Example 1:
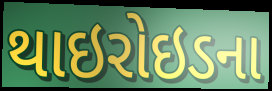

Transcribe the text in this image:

થાઇરોઇડના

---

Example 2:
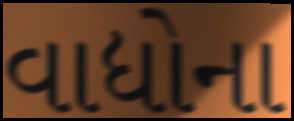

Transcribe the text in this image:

વાદ્યોના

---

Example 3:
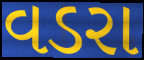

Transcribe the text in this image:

વડરા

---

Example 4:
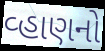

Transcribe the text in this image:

વ્હાણનો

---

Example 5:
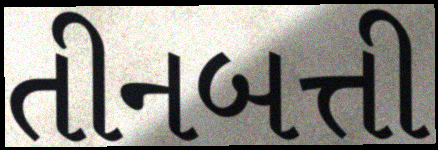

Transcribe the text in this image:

તીનબત્તી